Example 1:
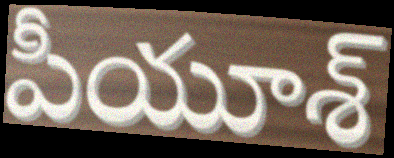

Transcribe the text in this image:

పీయూశ్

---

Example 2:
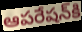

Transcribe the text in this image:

ఆపరేషన్‌కి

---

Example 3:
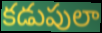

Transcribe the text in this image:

కడుపులా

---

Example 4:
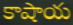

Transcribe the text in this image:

కాషాయ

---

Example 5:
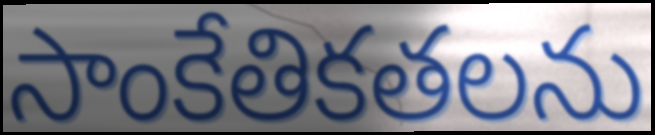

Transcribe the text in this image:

సాంకేతికతలను